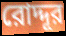
রোদ্দূর